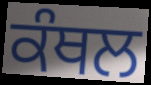
ਕੰਥਲ